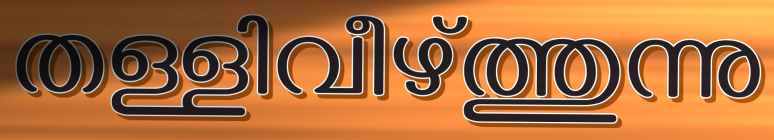
തള്ളിവീഴ്ത്തുന്നു